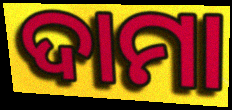
ଦାମା